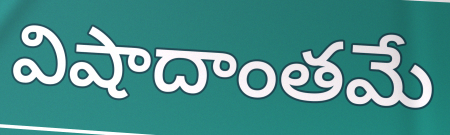
విషాదాంతమే